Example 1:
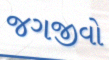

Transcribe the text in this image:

જગજીવો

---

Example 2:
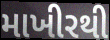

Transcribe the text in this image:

માખીરથી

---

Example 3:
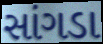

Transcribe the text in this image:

સાંગડા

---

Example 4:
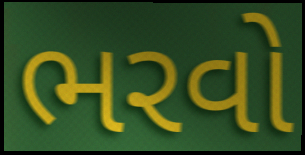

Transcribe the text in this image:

ભરવો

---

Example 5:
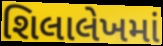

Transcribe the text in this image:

શિલાલેખમાં